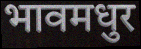
भावमधुर